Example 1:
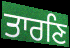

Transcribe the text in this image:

ਤਾਰਣਿ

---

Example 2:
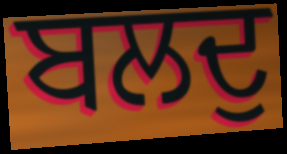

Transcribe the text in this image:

ਬਲਦੁ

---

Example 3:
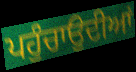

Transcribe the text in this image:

ਪਹੁੰਚਾਉਦੀਆਂ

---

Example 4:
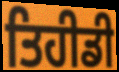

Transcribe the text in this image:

ਤਿਹੀਡੀ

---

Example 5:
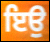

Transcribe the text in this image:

ਇਉ